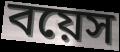
বয়েস